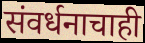
संवर्धनाचाही